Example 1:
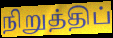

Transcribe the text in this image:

நிறுத்திப்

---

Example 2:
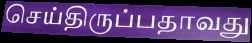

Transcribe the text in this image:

செய்திருப்பதாவது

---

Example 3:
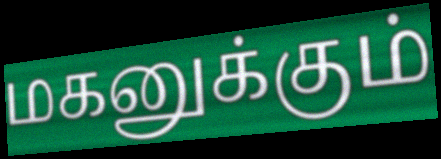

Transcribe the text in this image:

மகனுக்கும்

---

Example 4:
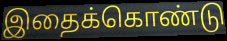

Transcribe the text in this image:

இதைக்கொண்டு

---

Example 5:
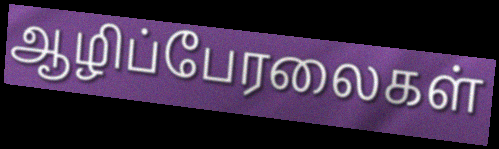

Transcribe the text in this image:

ஆழிப்பேரலைகள்